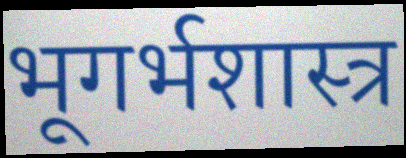
भूगर्भशास्त्र